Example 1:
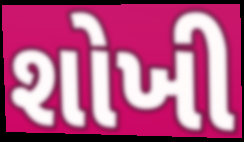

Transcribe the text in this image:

શોખી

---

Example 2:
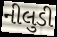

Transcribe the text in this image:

નીલુડી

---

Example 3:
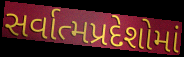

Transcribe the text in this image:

સર્વાત્મપ્રદેશોમાં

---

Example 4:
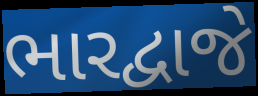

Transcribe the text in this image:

ભારદ્વાજે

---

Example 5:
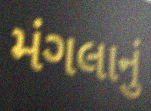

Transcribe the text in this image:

મંગલાનું